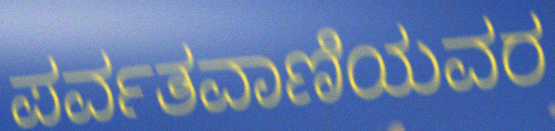
ಪರ್ವತವಾಣಿಯವರ